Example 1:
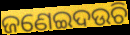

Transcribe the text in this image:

ଜଣେଇଦଉଚି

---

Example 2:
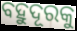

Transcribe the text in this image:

ବହୁଦୂରକୁ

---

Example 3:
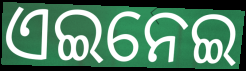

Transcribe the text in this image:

ଏଇନେଇ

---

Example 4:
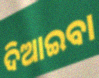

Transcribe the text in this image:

ଦିଆଇବା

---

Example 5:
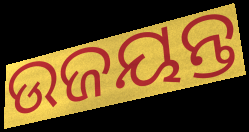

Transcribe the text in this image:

ଉଜୟନ୍ତ